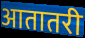
आतातरी